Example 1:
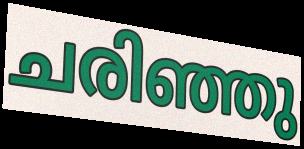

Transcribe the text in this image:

ചരിഞ്ഞു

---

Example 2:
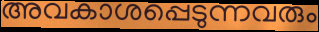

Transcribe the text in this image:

അവകാശപ്പെടുന്നവരും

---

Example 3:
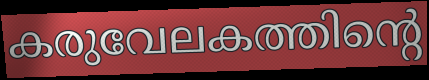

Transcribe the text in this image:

കരുവേലകത്തിന്റെ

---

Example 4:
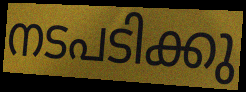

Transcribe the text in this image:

നടപടിക്കു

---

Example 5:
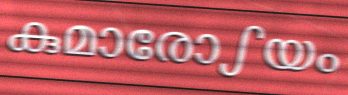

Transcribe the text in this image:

കുമാരോഽയം